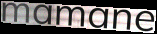
mamane